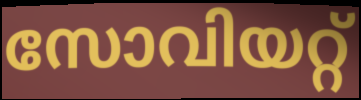
സോവിയറ്റ്